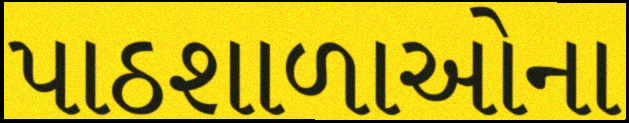
પાઠશાળાઓના